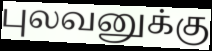
புலவனுக்கு